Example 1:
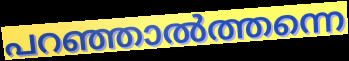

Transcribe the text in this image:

പറഞ്ഞാൽത്തന്നെ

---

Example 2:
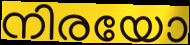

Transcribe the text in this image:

നിരയോ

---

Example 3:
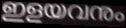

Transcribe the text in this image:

ഇളയവനും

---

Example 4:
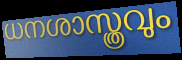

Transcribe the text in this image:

ധനശാസ്ത്രവും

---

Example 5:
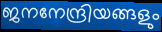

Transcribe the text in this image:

ജനനേന്ദ്രിയങ്ങളും